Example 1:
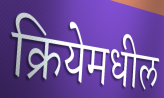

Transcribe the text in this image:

क्रियेमधील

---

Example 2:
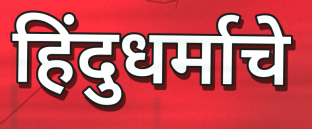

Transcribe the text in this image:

हिंदुधर्माचे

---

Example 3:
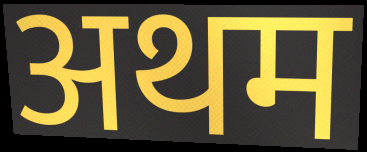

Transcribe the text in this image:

अथम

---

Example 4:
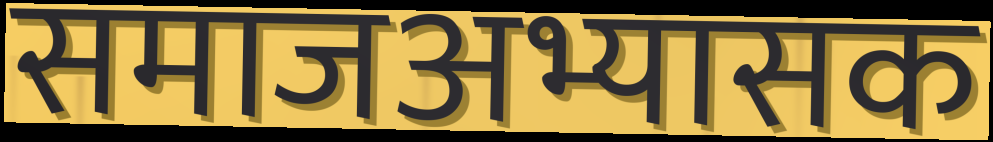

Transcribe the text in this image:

समाजअभ्यासक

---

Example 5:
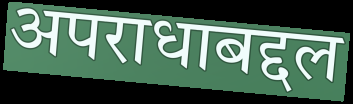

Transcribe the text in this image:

अपराधाबद्दल